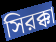
সিরক্কা